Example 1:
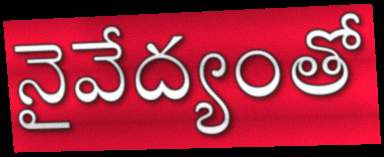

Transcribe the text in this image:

నైవేద్యంతో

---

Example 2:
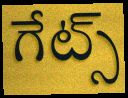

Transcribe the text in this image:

గేట్స్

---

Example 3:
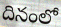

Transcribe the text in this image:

దినంలో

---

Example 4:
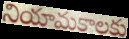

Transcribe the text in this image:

నియామకాలకు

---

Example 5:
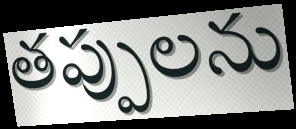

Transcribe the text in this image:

తప్పులను